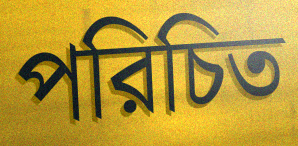
পরিচিত